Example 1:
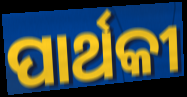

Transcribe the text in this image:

ପାର୍ଥକୀ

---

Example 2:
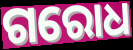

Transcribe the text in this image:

ଗରୋଧ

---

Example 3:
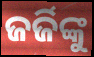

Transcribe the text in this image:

ଜର୍ଜିଙ୍କୁ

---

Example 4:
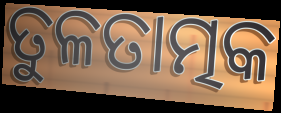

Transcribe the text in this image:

ତୁଳତାତ୍ମକ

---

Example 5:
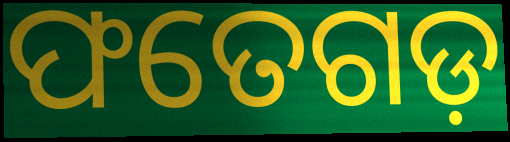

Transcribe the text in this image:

ଫତେଗଡ଼